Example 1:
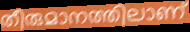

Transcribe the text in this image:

തീരുമാനത്തിലാണ്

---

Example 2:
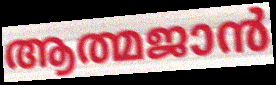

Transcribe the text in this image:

ആത്മജാൻ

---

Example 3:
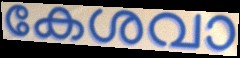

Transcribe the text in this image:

കേശവാ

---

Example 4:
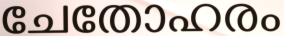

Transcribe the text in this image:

ചേതോഹരം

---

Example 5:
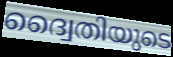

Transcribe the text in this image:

ദ്വൈതിയുടെ